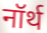
नॉर्थ